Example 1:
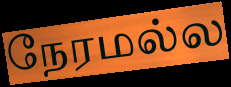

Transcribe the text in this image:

நேரமல்ல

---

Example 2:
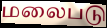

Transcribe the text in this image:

மலைபடு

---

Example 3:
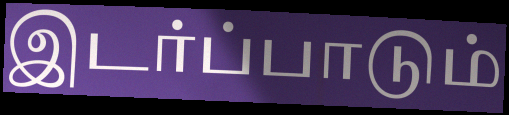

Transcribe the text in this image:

இடர்ப்பாடும்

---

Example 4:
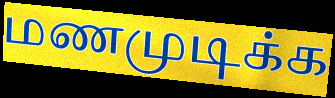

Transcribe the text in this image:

மணமுடிக்க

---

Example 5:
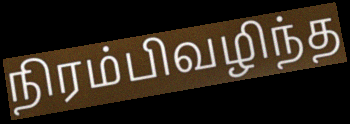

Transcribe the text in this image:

நிரம்பிவழிந்த